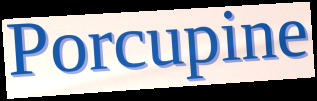
Porcupine